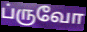
ப்ருவோ